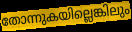
തോന്നുകയില്ലെങ്കിലും